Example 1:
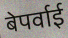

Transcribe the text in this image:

बेपर्वाई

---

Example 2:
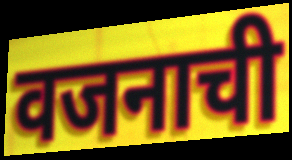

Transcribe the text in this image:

वजनाची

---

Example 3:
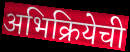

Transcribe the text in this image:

अभिक्रियेची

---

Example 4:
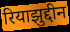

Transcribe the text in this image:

रियाझुद्दीन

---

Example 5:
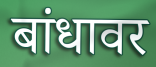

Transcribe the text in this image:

बांधावर